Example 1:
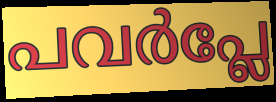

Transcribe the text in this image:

പവർപ്ലേ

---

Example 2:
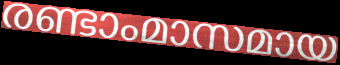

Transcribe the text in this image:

രണ്ടാംമാസമായ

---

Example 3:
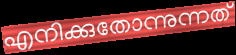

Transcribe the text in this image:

എനിക്കുതോന്നുന്നത്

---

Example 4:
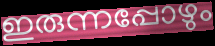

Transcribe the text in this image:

ഇരുന്നപ്പോഴും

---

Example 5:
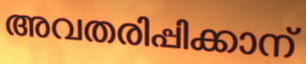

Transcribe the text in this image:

അവതരിപ്പിക്കാന്